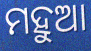
ମହୁଆ